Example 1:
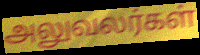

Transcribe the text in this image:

அலுவலர்கள்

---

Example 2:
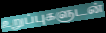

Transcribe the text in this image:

உறுப்புகளுடன்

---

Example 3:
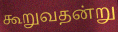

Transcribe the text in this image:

கூறுவதன்று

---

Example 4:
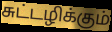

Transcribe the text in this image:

சுட்டழிக்கும்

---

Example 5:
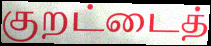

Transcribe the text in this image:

குறட்டைத்